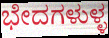
ಭೇದಗಳುಳ್ಳ